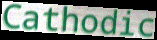
Cathodic